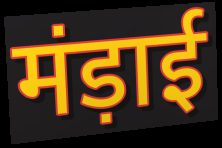
मंड़ाई